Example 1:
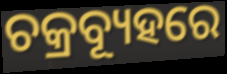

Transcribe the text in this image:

ଚକ୍ରବ୍ୟୂହରେ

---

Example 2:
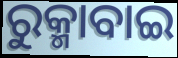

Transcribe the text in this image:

ରୁକ୍ମାବାଇ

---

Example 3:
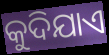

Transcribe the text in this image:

କୁଦିଯାଏ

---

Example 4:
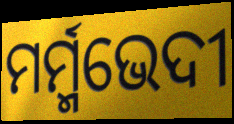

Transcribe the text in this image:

ମର୍ମ୍ମଭେଦୀ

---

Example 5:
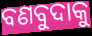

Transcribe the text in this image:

ବଣବୁଦାକୁ